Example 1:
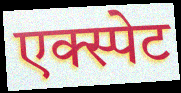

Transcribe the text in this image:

एक्स्पेट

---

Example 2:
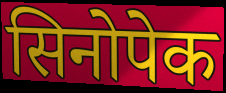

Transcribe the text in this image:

सिनोपेक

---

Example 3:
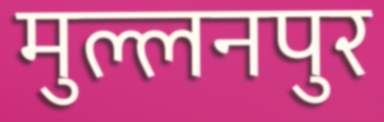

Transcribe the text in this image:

मुल्लनपुर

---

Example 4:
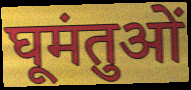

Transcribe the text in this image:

घूमंतुओं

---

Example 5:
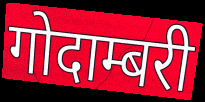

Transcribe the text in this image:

गोदाम्बरी